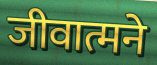
जीवात्मने